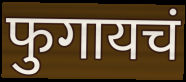
फुगायचं